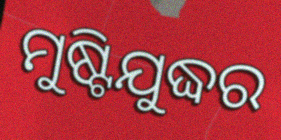
ମୁଷ୍ଟିଯୁଦ୍ଧର